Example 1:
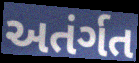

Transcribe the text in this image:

અતંર્ગત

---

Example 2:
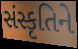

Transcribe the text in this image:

સંસ્કૃતિને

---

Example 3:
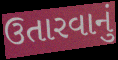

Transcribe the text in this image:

ઉતારવાનું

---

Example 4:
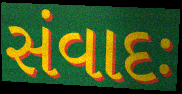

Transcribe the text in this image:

સંવાદઃ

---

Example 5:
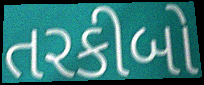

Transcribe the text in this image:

તરકીબો